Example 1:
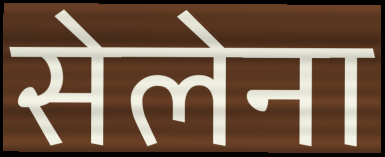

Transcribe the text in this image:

सेलेना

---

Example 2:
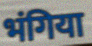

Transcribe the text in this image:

भंगिया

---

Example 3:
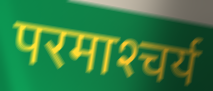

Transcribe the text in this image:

परमाश्चर्य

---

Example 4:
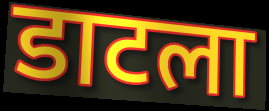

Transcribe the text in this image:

डाटला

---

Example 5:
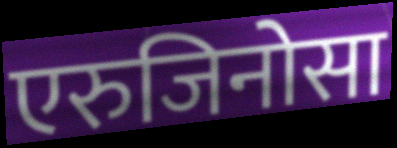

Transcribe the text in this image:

एरुजिनोसा